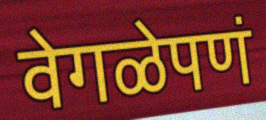
वेगळेपणं